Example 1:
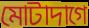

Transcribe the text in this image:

মোটাদাগে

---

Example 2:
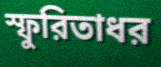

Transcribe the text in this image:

স্ফুরিতাধর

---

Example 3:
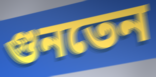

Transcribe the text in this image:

গুনতেন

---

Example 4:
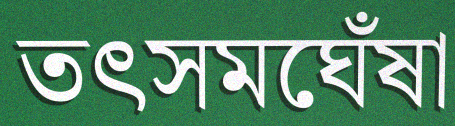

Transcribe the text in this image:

তৎসমঘেঁষা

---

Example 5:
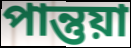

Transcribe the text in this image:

পান্তুয়া